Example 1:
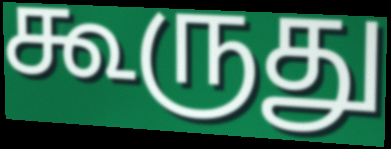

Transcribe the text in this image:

கூருது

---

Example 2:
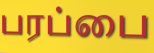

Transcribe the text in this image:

பரப்பை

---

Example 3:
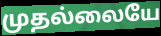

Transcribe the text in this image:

முதல்லையே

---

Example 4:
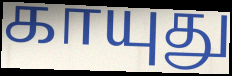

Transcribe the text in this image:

காயுது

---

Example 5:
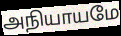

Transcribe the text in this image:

அநியாயமே